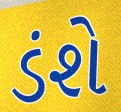
ડંશે